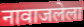
नावाजलेला